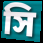
সি